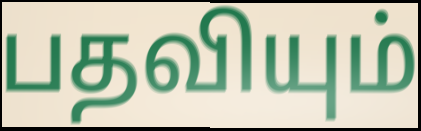
பதவியும்